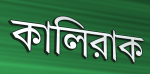
কালিরাক